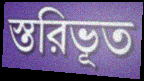
স্তরিভূত